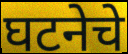
घटनेचे